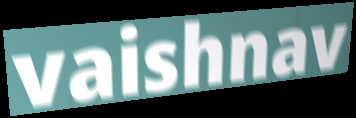
vaishnav